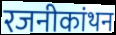
रजनीकांथन